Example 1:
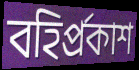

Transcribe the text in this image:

বহিৰ্প্ৰকাশ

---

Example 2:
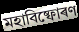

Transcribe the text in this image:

মহাবিষ্ফোৰণ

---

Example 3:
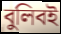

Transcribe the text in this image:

বুলিবই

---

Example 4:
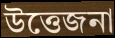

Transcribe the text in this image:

উত্তেজনা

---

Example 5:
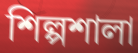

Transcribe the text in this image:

শিল্পশালা